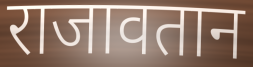
राजावतान